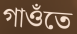
গাওঁতে